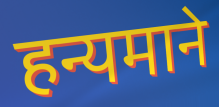
हन्यमाने